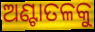
ଅଣ୍ଟାତଳକୁ